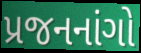
પ્રજનનાંગો